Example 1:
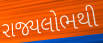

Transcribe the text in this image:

રાજ્યલોભથી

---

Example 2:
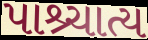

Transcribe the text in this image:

પાશ્ર્ચાત્ય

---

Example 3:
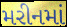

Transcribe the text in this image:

મરીનમાં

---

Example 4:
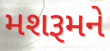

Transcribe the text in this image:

મશરૂમને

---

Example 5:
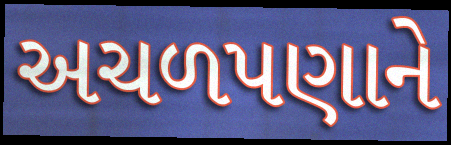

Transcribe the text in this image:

અચળપણાને